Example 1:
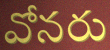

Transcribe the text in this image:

వోనరు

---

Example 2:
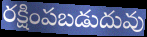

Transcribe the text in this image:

రక్షింపబడుదువు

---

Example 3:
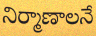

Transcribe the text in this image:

నిర్మాణాలనే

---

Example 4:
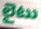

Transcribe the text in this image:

లైటు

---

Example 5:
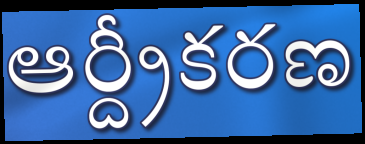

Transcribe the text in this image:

ఆర్ద్రీకరణ